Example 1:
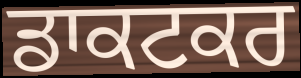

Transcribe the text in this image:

ਡਾਕਟਕਰ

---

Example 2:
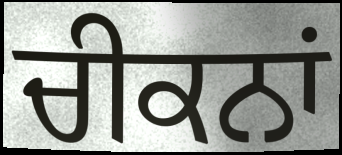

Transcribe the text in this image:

ਚੀਕਨਾਂ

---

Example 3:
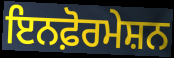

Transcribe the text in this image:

ਇਨਫ਼ੋਰਮੇਸ਼ਨ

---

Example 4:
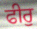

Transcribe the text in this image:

ਫੀਰੁ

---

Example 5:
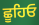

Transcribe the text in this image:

ਛੂਹਿਓ